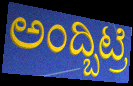
ಅಂದ್ಬಿಟ್ರೆ